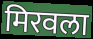
मिरवला